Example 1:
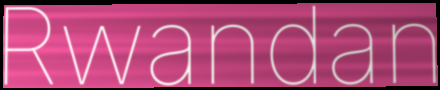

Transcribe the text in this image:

Rwandan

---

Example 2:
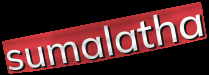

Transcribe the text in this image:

sumalatha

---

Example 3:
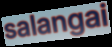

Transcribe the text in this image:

salangai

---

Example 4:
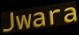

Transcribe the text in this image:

Jwara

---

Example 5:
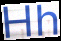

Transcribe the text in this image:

Hh